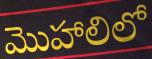
మొహాలిలో